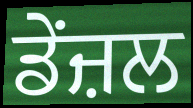
ਡੇਂਜ਼ਲ